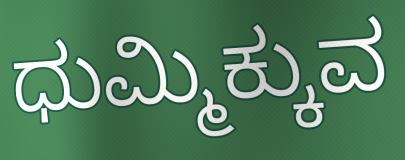
ಧುಮ್ಮಿಕ್ಕುವ